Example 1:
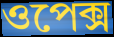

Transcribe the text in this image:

ওপেক্স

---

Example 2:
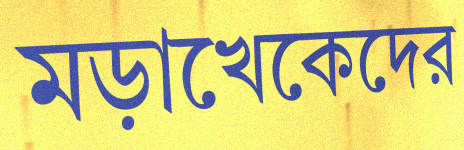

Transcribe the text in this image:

মড়াখেকেদের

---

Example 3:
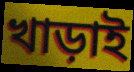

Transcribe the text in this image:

খাড়াই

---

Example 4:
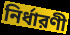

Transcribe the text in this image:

নির্ধারণী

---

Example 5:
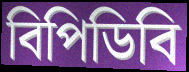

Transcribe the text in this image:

বিপিডিবি